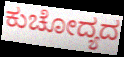
ಕುಚೋದ್ಯದ